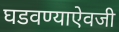
घडवण्याऐवजी